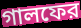
গালফের